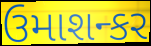
ઉમાશન્કર